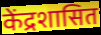
केंद्रशासित